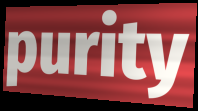
purity